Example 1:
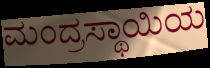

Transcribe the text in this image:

ಮಂದ್ರಸ್ಥಾಯಿಯ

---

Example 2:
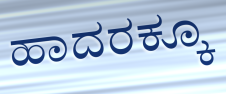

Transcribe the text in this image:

ಹಾದರಕ್ಕೂ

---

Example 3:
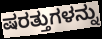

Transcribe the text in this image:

ಷರತ್ತುಗಳನ್ನು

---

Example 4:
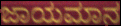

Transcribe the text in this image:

ಜಾಯಮಾನ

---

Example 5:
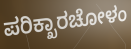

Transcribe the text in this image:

ಪರಿಕ್ಖಾರಚೋಳಂ